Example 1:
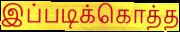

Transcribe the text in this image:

இப்படிக்கொத்த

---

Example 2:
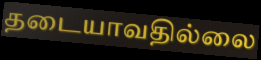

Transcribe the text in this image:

தடையாவதில்லை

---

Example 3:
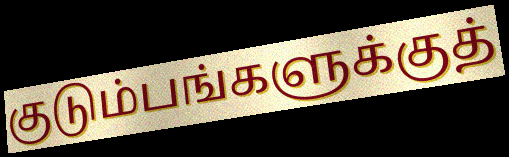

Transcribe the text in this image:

குடும்பங்களுக்குத்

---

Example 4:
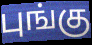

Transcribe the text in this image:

புங்கு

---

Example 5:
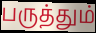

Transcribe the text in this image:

பருத்தும்